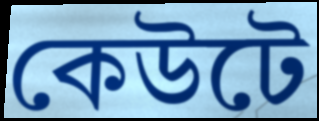
কেউটে